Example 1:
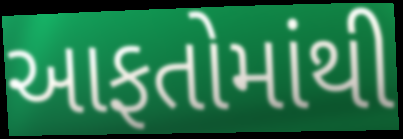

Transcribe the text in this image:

આફતોમાંથી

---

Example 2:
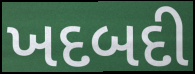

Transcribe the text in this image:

ખદબદી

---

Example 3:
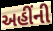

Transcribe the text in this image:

અહીંની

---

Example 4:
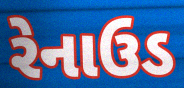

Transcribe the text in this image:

રેનાઉડ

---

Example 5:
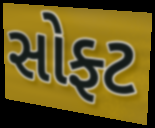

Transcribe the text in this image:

સોફ્ટ